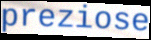
preziose